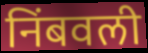
निंबवली